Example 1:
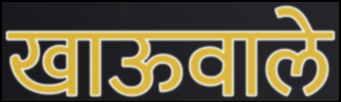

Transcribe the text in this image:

खाऊवाले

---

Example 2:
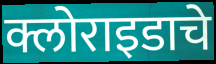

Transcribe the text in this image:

क्लोराइडाचे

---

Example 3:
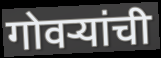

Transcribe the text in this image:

गोवऱ्यांची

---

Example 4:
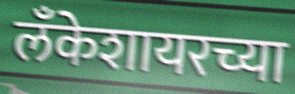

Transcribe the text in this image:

लँकेशायरच्या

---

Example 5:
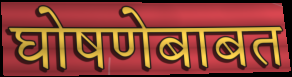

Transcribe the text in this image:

घोषणेबाबत